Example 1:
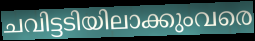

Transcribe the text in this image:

ചവിട്ടടിയിലാക്കുംവരെ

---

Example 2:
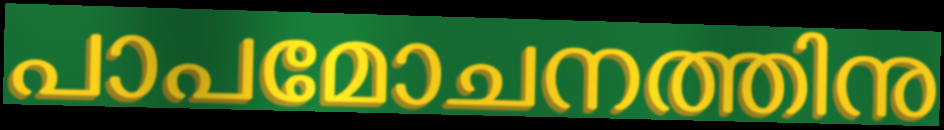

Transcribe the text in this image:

പാപമോചനത്തിനു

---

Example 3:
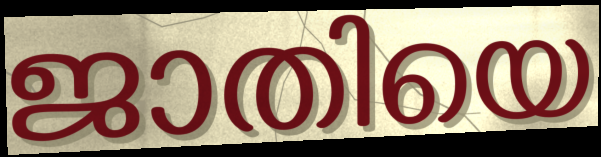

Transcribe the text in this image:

ജാതിയെ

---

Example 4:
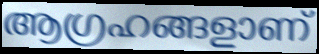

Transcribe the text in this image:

ആഗ്രഹങ്ങളാണ്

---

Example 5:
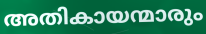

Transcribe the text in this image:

അതികായന്മാരും